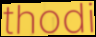
thodi